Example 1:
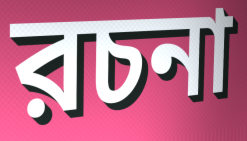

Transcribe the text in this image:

রচনা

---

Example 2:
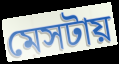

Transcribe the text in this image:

মেসটায়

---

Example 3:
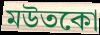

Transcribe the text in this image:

মউতকো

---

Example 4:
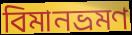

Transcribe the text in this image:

বিমানভ্রমণ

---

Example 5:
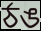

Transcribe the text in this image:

ঠঙ